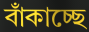
বাঁকাচ্ছে